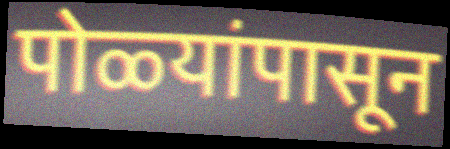
पोळ्यांपासून